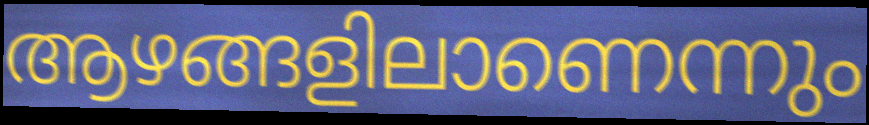
ആഴങ്ങളിലാണെന്നും